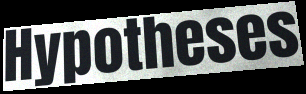
Hypotheses